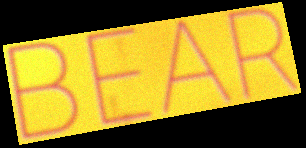
BEAR